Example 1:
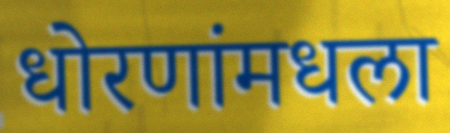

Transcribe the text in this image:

धोरणांमधला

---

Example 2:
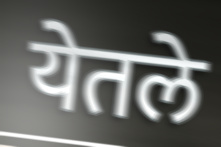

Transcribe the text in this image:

येतले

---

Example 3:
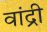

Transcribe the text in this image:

वांद्री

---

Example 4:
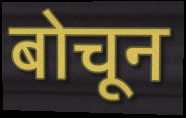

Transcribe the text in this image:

बोचून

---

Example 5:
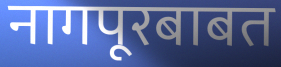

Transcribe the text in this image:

नागपूरबाबत